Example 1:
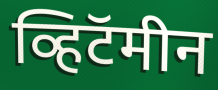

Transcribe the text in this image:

व्हिटॅमीन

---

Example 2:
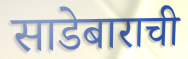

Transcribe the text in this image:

साडेबाराची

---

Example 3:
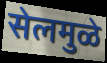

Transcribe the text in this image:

सेलमुळे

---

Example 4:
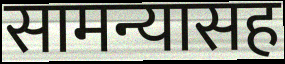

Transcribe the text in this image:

सामन्यासह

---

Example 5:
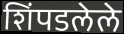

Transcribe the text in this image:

शिंपडलेले